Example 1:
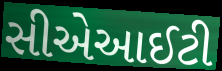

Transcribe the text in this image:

સીએઆઈટી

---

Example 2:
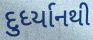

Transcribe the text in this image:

દુર્ધ્યાનથી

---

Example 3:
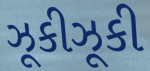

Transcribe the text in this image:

ઝૂકીઝૂકી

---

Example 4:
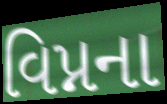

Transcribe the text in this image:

વિપ્નના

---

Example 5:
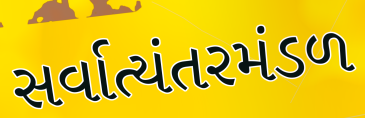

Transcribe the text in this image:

સર્વાત્યંતરમંડળ